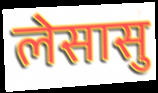
लेसासु